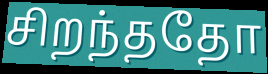
சிறந்ததோ